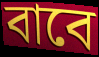
বাবে